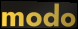
modo